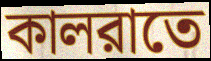
কালরাতে